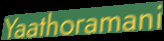
Yaathoramani